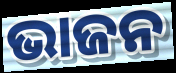
ଭାଜନ